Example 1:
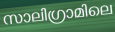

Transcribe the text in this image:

സാലിഗ്രാമിലെ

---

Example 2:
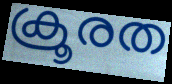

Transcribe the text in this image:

ക്രൂരത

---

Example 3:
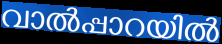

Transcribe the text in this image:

വാൽപ്പാറയിൽ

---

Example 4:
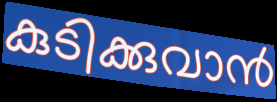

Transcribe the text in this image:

കുടിക്കുവാൻ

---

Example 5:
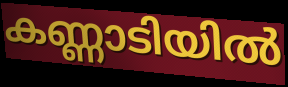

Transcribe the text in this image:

കണ്ണാടിയിൽ